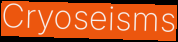
Cryoseisms